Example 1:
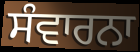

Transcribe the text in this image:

ਸੰਵਾਰਨਾ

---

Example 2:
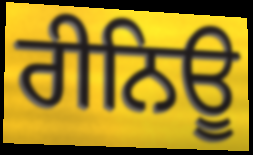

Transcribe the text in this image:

ਰੀਨਿਊ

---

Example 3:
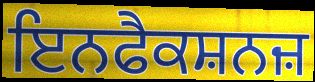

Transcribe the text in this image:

ਇਨਫੈਕਸ਼ਨਜ਼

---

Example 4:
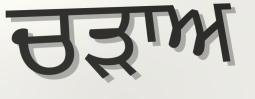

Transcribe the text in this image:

ਚੜਾਅ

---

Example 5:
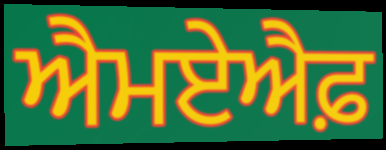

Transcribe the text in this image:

ਐਮਏਐਫ਼